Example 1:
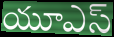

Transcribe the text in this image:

యూఎస్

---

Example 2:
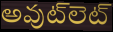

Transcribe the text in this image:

అవుట్‌లెట్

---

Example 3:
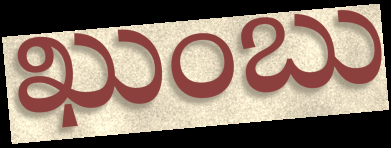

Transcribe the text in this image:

ఖుంబు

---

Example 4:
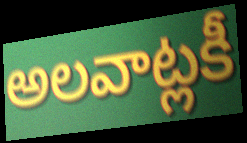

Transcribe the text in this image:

అలవాట్లకీ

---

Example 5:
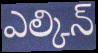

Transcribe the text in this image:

ఎల్కిన్